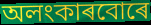
অলংকাৰবোৰে